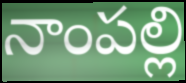
నాంపల్లి